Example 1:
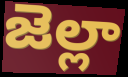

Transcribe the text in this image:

జెల్లా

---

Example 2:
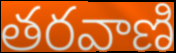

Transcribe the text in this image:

తరవాణి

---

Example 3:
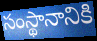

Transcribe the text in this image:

సంస్థానానికి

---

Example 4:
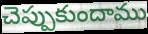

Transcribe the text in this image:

చెప్పుకుందాము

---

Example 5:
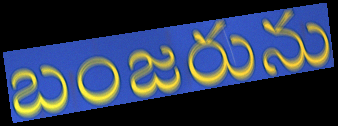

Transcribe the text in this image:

బంజరును